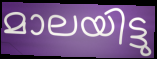
മാലയിട്ടു